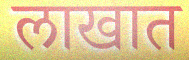
लाखात